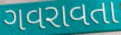
ગવરાવતા